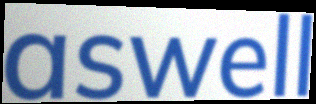
aswell